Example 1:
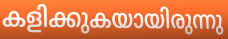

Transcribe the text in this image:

കളിക്കുകയായിരുന്നു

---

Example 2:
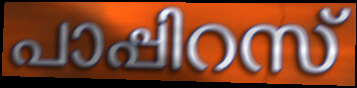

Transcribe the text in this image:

പാപ്പിറസ്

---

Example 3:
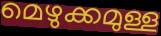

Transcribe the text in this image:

മെഴുക്കമുള്ള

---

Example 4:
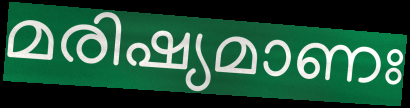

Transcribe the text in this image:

മരിഷ്യമാണഃ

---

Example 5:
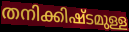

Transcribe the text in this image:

തനിക്കിഷ്ടമുള്ള